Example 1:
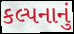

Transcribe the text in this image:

કલ્પનાનું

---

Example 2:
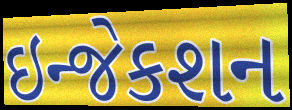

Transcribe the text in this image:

ઇન્જેકશન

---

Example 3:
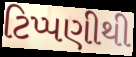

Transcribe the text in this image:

ટિપ્પણીથી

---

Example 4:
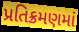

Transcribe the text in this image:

પ્રતિક્રમણમાં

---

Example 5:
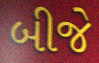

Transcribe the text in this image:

બીજે